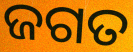
ଜଗତ